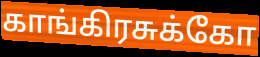
காங்கிரசுக்கோ